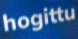
hogittu